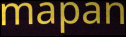
mapan